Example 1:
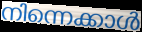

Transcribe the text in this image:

നിന്നെക്കാൾ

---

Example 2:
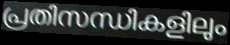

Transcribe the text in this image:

പ്രതിസന്ധികളിലും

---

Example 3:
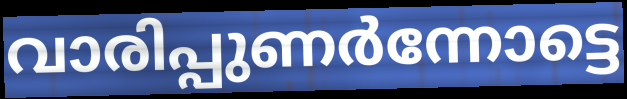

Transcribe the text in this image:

വാരിപ്പുണർന്നോട്ടെ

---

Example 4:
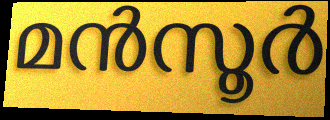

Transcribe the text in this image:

മൻസൂർ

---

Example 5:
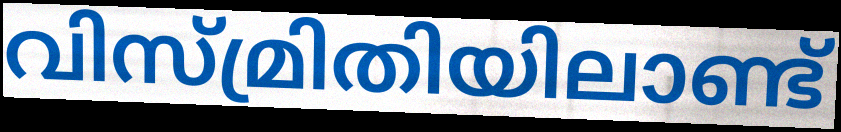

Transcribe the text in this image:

വിസ്മ്രിതിയിലാണ്ട്